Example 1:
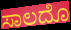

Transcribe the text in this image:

ಸಾಲದೊ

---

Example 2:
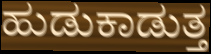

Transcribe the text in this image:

ಹುಡುಕಾಡುತ್ತ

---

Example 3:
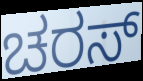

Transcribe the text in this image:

ಚರಸ್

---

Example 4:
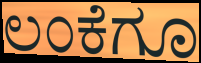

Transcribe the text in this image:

ಲಂಕೆಗೂ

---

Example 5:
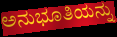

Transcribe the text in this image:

ಅನುಭೂತಿಯನ್ನು